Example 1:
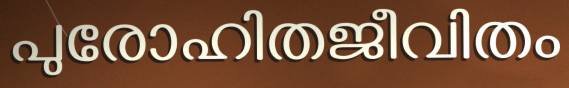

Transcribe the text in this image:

പുരോഹിതജീവിതം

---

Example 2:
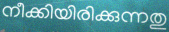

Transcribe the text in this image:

നീക്കിയിരിക്കുന്നതു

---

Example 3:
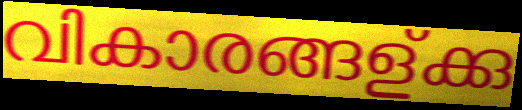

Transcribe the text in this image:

വികാരങ്ങള്ക്കു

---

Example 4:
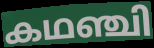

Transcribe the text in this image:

കഥഞ്ചി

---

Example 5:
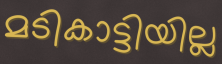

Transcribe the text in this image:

മടികാട്ടിയില്ല